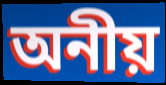
অনীয়